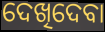
ଦେଖିଦେବା